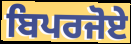
ਬਿਪਰਜੋਏ